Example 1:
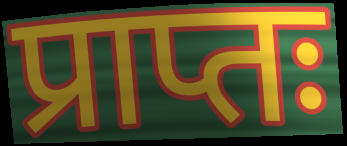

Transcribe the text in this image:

प्राप्तः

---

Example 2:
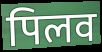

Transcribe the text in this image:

पिलव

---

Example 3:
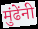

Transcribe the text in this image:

मुंढेंनी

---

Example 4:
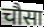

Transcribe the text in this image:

चौसा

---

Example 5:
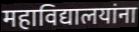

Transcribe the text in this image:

महाविद्यालयांना